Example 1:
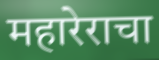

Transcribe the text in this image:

महारेराचा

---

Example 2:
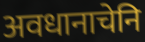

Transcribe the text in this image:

अवधानाचेनि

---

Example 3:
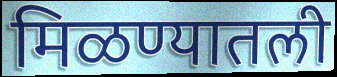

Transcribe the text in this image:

मिळण्यातली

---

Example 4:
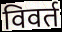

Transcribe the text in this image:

विवर्त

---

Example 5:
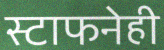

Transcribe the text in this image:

स्टाफनेही